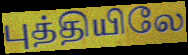
புத்தியிலே